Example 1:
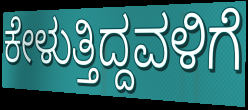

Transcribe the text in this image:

ಕೇಳುತ್ತಿದ್ದವಳಿಗೆ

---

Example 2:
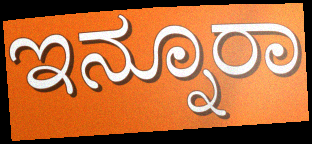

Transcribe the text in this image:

ಇನ್ನೂರಾ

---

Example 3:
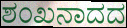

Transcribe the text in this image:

ಶಂಖನಾದದ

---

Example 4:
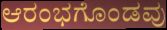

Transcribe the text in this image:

ಆರಂಭಗೊಂಡವು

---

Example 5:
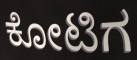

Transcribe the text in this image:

ಕೋಟಿಗ